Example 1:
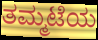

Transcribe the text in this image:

ತಮ್ಮಟೆಯ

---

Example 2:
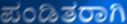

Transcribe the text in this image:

ಪಂಡಿತರಾಗಿ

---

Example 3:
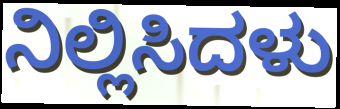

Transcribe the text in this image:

ನಿಲ್ಲಿಸಿದಳು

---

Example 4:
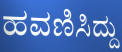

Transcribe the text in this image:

ಹವಣಿಸಿದ್ದು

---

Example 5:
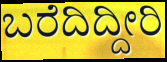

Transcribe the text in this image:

ಬರೆದಿದ್ದೀರಿ